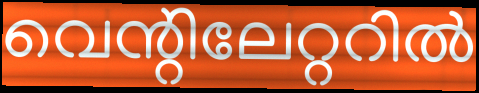
വെന്റിലേറ്ററിൽ